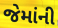
જેમાંની